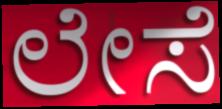
ಲೇಸೆ